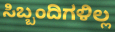
ಸಿಬ್ಬಂದಿಗಳಿಲ್ಲ